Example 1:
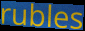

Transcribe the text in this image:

rubles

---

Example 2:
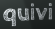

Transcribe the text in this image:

quivi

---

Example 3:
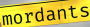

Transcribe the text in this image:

mordants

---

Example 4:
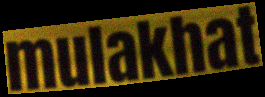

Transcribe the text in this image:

mulakhat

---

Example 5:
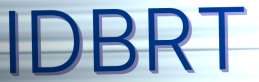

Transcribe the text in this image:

IDBRT